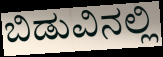
ಬಿಡುವಿನಲ್ಲಿ